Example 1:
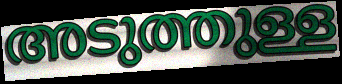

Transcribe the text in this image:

അടുത്തുള്ള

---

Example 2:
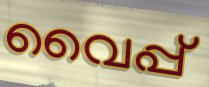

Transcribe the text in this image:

വൈപ്പ്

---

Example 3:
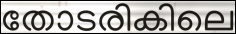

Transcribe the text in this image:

തോടരികിലെ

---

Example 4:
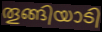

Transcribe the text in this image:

തൂങ്ങിയാടി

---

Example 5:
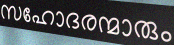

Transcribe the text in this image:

സഹോദരന്മാരും